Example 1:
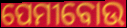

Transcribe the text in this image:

ପେମୀବୋଉ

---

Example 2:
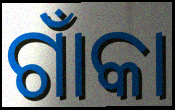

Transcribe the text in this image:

ଗାଁକା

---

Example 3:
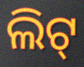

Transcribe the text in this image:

ଲିଟ୍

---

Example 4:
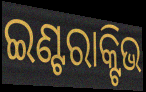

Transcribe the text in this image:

ଇଣ୍ଟରାକ୍ଟିଭ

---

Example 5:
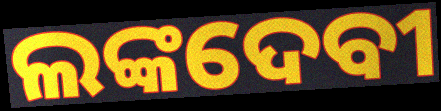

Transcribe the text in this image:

ଲଙ୍କଦେବୀ